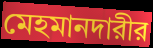
মেহমানদারীর